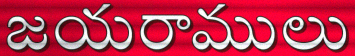
జయరాములు